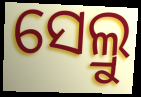
ସେଲ୍ରୁ